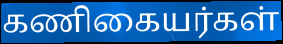
கணிகையர்கள்